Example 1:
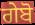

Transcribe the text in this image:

ਗੇਬੋ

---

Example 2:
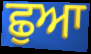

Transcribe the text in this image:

ਛੁਆ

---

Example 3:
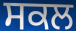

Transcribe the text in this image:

ਸਕਲ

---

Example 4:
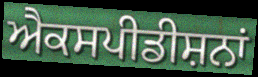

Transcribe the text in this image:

ਐਕਸਪੀਡੀਸ਼ਨਾਂ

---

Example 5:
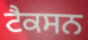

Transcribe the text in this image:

ਟੈਕਸਨ